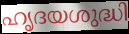
ഹൃദയശുദ്ധി